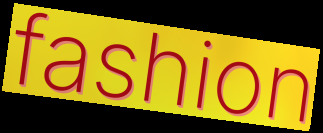
fashion